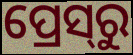
ପ୍ରେସ୍‍ରୁ